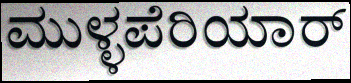
ಮುಳ್ಳಪೆರಿಯಾರ್